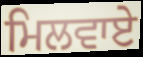
ਮਿਲਵਾਏ